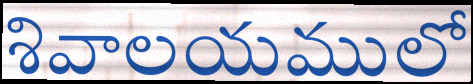
శివాలయములో